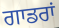
ਗਾਡਰਾਂ